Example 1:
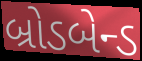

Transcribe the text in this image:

બ્રોડબેન્ડ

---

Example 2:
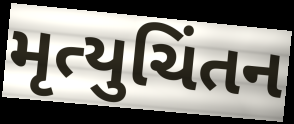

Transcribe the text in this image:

મૃત્યુચિંતન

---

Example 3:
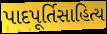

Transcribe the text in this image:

પાદપૂર્તિસાહિત્ય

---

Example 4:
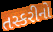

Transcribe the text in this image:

તસ્કરીનો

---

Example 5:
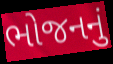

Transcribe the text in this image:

ભોજનનું